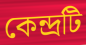
কেন্দ্রটি